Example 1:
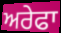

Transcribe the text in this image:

ਅਰੇਫਾ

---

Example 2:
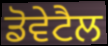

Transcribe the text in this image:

ਡੋਵੇਟੈਲ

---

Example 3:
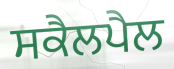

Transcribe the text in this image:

ਸਕੈਲਪੈਲ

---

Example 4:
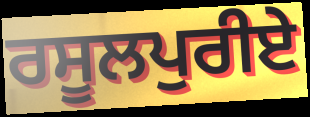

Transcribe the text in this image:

ਰਸੂਲਪੁਰੀਏ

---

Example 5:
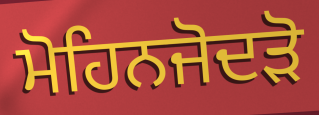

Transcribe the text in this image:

ਮੋਹਿਨਜੋਦੜੋ